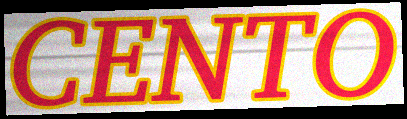
CENTO